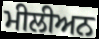
ਮੀਲੀਅਨ